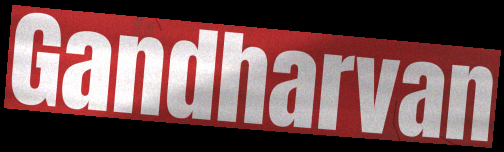
Gandharvan